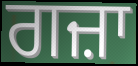
ਗਜ਼ਾ